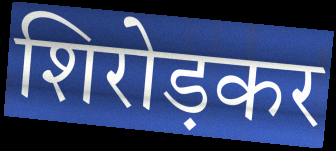
शिरोड़कर